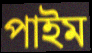
পাইম